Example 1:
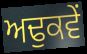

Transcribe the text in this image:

ਅਢੁਕਵੇਂ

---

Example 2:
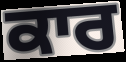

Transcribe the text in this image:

ਕਾਰ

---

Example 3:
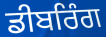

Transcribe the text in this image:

ਡੀਬਰਿੰਗ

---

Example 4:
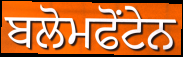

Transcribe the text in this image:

ਬਲੋਮਫੋਂਟੇਨ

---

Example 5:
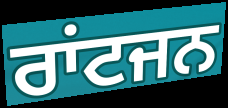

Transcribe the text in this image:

ਰਾਂਟਜਨ